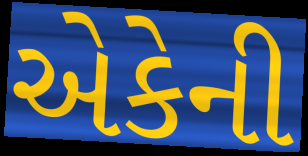
એકેની